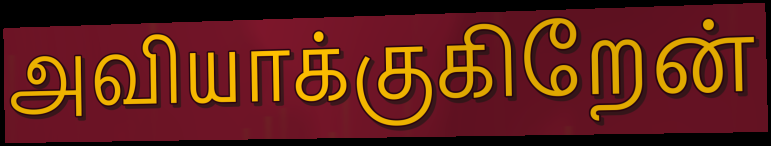
அவியாக்குகிறேன்